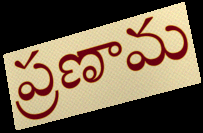
ప్రణామ